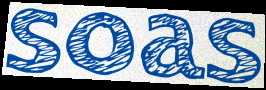
soas